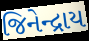
જિનેન્દ્રાય